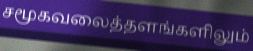
சமூகவலைத்தளங்களிலும்